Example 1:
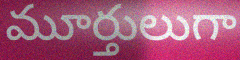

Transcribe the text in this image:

మూర్తులుగా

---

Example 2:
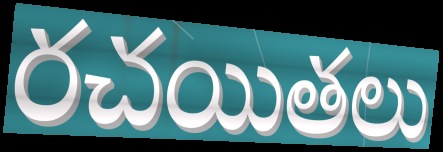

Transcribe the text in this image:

రచయితలు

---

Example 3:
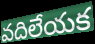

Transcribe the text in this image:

వదిలేయక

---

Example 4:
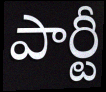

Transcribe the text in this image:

పార్టీ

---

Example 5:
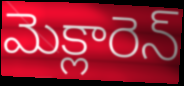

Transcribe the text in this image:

మెక్లారెన్